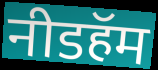
नीडहॅम